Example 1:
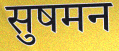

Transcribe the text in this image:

सुषमन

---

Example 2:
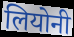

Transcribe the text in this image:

लियोनी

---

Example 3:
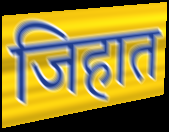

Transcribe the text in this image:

जिहात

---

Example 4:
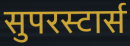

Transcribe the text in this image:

सुपरस्टार्स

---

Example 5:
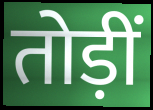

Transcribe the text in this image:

तोड़ीं